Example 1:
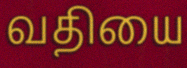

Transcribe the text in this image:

வதியை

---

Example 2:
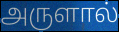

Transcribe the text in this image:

அருளால்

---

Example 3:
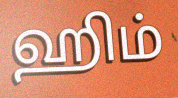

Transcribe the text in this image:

ஹிம்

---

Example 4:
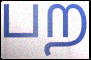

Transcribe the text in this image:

பற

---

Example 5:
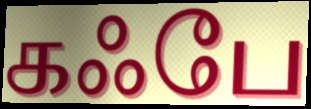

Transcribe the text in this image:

கஃபே